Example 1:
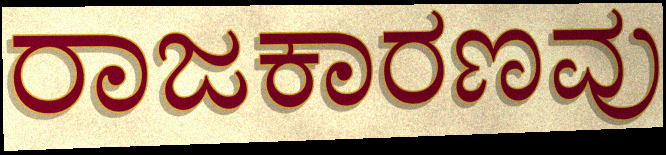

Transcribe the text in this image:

ರಾಜಕಾರಣವು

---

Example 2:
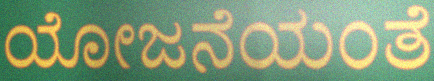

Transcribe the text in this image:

ಯೋಜನೆಯಂತೆ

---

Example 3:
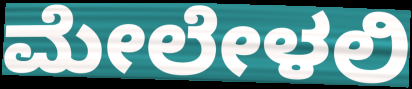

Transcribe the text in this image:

ಮೇಲೇಳಲಿ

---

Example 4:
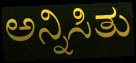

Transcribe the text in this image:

ಅನ್ನಿಸಿತು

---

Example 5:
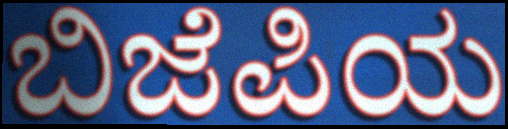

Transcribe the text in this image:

ಬಿಜೆಪಿಯ